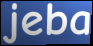
jeba